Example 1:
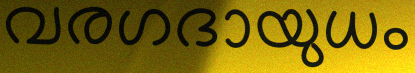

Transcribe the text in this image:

വരഗദായുധം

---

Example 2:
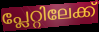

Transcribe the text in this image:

പ്ലേറ്റിലേക്ക്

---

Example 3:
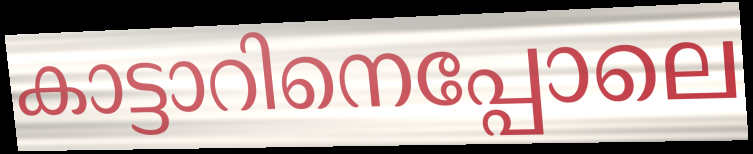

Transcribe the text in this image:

കാട്ടാറിനെപ്പോലെ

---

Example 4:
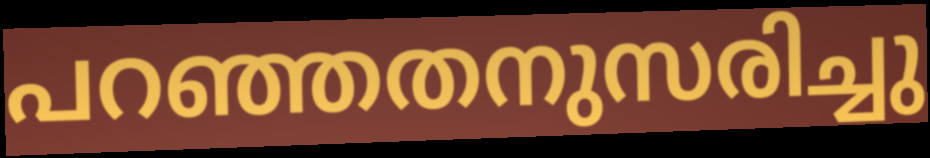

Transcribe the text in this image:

പറഞ്ഞതനുസരിച്ചു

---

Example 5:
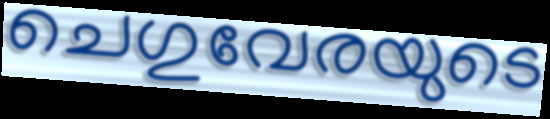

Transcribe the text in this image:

ചെഗുവേരയുടെ